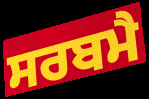
ਸਰਬਮੈ